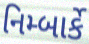
નિમ્બાર્કે